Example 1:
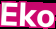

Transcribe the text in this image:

Eko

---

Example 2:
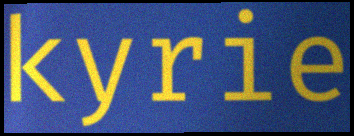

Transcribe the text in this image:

kyrie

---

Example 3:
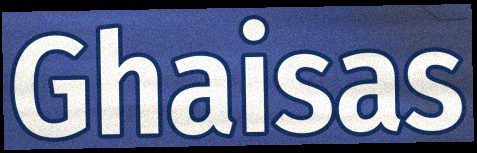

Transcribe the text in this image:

Ghaisas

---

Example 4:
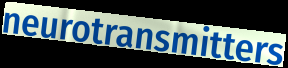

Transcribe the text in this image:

neurotransmitters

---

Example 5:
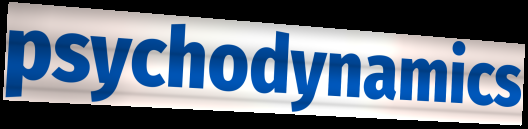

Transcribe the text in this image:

psychodynamics